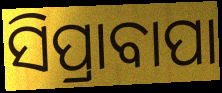
ସିପ୍ରାବାପା